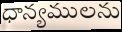
ధాన్యములను